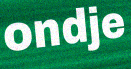
ondje